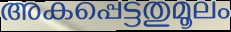
അകപ്പെട്ടതുമൂലം